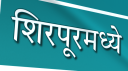
शिरपूरमध्ये